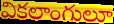
వికలాంగులూ